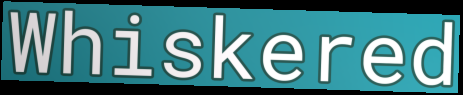
Whiskered